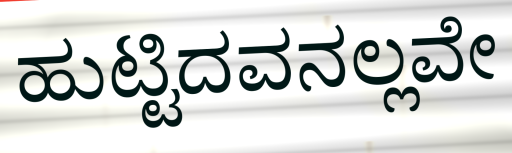
ಹುಟ್ಟಿದವನಲ್ಲವೇ